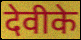
देवीके